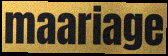
maariage